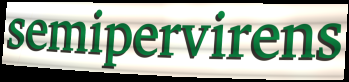
semipervirens